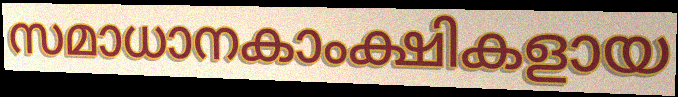
സമാധാനകാംക്ഷികളായ